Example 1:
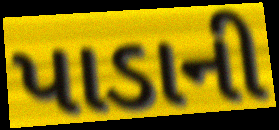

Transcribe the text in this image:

પાડાની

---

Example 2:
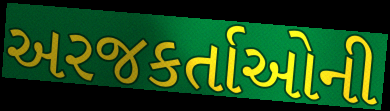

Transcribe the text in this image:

અરજકર્તાઓની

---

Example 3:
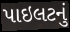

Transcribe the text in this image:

પાઇલટનું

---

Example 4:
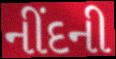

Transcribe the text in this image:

નીંદની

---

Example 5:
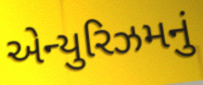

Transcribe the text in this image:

એન્યુરિઝમનું